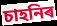
চাহনিৰ